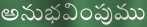
అనుభవింపుము